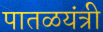
पातळयंत्री